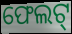
ଫେଲଟ୍